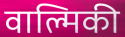
वाल्मिकी